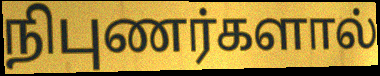
நிபுணர்களால்